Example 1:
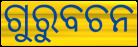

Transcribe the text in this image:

ଗୁରୁବଚନ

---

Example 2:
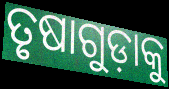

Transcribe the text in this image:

ତୃଷାଗୁଡ଼ାକୁ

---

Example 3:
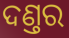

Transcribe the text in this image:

ଦଣ୍ତର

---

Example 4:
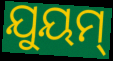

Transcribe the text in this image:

ଯୁୟମ୍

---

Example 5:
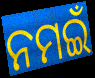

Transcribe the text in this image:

ନମଇଁ